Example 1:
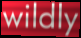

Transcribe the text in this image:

wildly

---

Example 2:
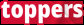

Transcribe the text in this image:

toppers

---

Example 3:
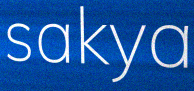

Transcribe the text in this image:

sakya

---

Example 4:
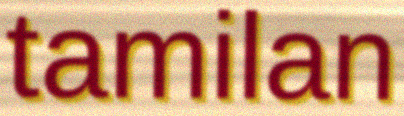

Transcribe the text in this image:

tamilan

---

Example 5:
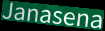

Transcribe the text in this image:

Janasena